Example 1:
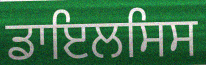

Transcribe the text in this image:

ਡਾਇਲਸਿਸ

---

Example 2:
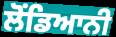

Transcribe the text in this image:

ਲੋਂਡਿਆਨੀ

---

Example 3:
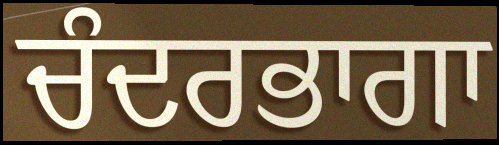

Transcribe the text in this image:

ਚੰਦਰਭਾਗਾ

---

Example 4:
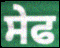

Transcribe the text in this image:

ਸੇਫ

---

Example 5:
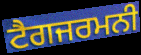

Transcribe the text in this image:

ਟੈਗਜਰਮਨੀ